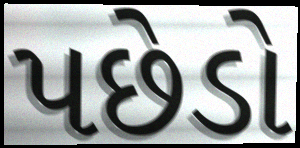
પછેડો